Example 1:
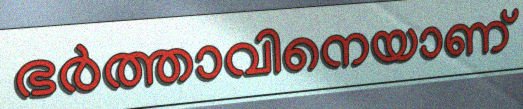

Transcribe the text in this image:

ഭർത്താവിനെയാണ്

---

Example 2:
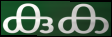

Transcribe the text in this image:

കുക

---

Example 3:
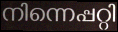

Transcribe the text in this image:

നിന്നെപ്പറ്റി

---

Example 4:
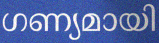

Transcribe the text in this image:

ഗണ്യമായി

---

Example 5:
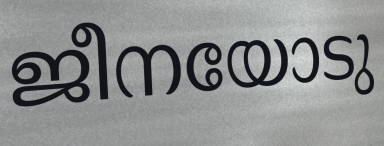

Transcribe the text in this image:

ജീനയോടു